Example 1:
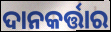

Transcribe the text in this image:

ଦାନକର୍ତ୍ତାର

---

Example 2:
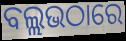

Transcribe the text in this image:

ବଲ୍ଲଭଠାରେ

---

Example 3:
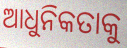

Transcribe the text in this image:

ଆଧୁନିକତାକୁ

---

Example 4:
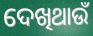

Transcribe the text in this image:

ଦେଖିଥାଉଁ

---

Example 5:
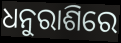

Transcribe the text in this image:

ଧନୁରାଶିରେ